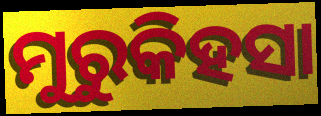
ମୁରୁକିହସା